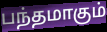
பந்தமாகும்